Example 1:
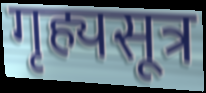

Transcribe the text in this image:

गृह्यसूत्र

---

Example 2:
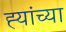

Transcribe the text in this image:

ह्‍यांच्या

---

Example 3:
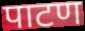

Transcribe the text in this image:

पाटण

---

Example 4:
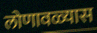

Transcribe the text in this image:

लोणावळ्यास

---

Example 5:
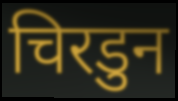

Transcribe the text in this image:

चिरडुन